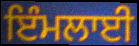
ਇੰਮਲਾਈ